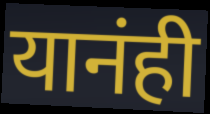
यानंही